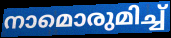
നാമൊരുമിച്ച്